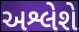
અશ્લેશે